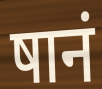
षानं